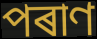
পৰাণ